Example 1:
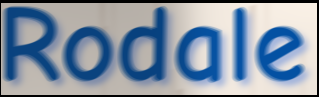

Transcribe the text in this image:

Rodale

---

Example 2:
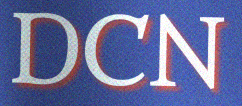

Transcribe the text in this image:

DCN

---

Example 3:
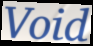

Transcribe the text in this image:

Void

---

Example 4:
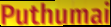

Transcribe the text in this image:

Puthumai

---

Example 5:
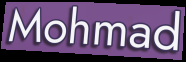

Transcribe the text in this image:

Mohmad